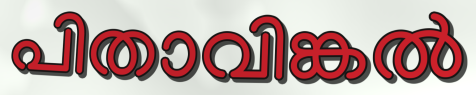
പിതാവിങ്കൽ